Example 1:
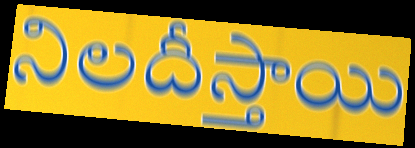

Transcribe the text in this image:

నిలదీస్తాయి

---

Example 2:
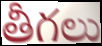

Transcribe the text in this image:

తీగలు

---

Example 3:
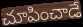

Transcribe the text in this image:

చూపించాడే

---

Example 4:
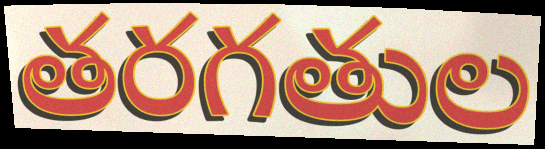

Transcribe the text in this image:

తరగతుల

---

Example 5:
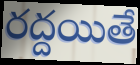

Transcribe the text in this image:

రద్దయితే